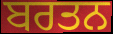
ਬਰਤਨ